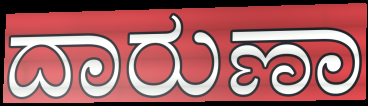
ದಾರುಣಾ